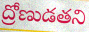
ద్రోణుడతని